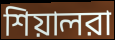
শিয়ালরা